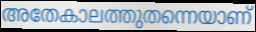
അതേകാലത്തുതന്നെയാണ്